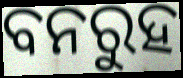
ବନରୁହ